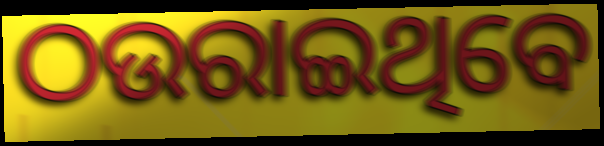
ଠଉରାଇଥିବେ